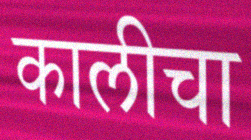
कालीचा